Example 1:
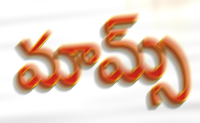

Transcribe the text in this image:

మామ్స్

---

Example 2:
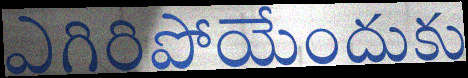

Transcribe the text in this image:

ఎగిరిపోయేందుకు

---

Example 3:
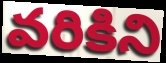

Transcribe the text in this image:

వరికిని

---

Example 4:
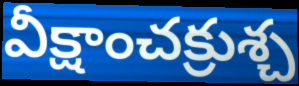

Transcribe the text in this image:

వీక్షాంచక్రుశ్చ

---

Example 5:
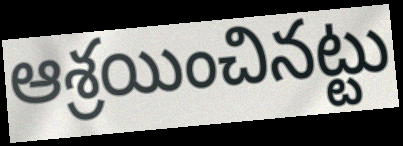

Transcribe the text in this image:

ఆశ్రయించినట్టు